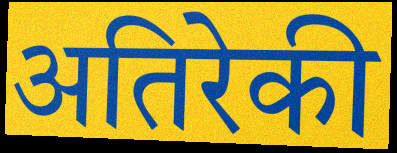
अतिरेकी